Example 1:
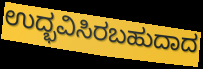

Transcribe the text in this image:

ಉದ್ಭವಿಸಿರಬಹುದಾದ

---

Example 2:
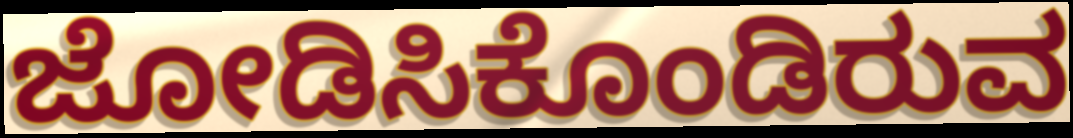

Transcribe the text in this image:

ಜೋಡಿಸಿಕೊಂಡಿರುವ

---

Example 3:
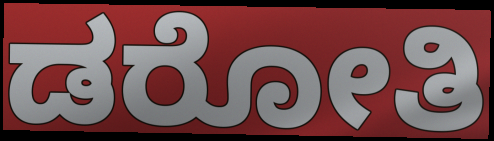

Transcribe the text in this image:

ಡರೋತಿ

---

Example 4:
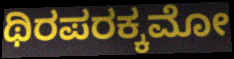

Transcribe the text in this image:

ಥಿರಪರಕ್ಕಮೋ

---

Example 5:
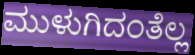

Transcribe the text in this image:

ಮುಳುಗಿದಂತೆಲ್ಲ